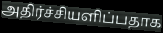
அதிர்ச்சியளிப்பதாக